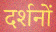
दर्शनों